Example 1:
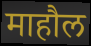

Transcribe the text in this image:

माहौल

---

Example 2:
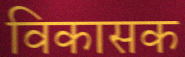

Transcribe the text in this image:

विकासक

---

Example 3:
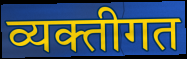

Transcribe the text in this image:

व्यक्तीगत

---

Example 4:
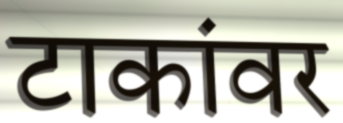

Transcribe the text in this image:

टाकांवर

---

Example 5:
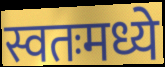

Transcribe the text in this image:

स्वतःमध्ये